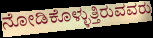
ನೋಡಿಕೊಳ್ಳುತ್ತಿರುವವರು